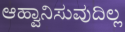
ಆಹ್ವಾನಿಸುವುದಿಲ್ಲ